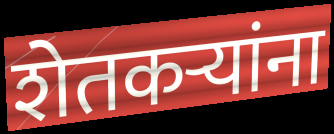
शेतकर्‍यांना